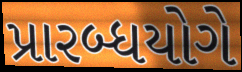
પ્રારબ્ધયોગે